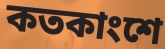
কতকাংশে